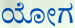
ಯೋಗ